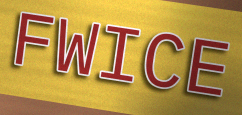
FWICE